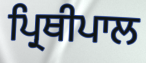
ਪ੍ਰਿਥੀਪਾਲ